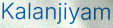
Kalanjiyam